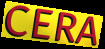
CERA